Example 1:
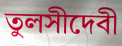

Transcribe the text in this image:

তুলসীদেবী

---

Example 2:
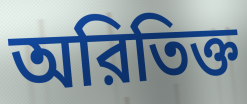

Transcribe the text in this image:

অরিতিক্ত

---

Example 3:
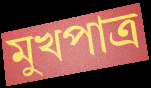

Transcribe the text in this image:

মুখপাত্র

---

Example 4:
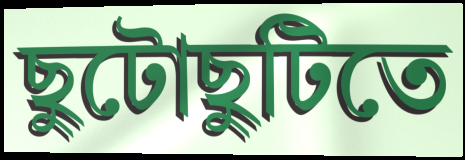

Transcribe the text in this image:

ছুটোছুটিতে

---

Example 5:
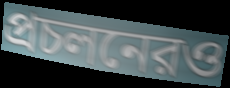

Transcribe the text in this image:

প্রচলনেরও